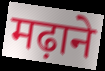
मढ़ाने